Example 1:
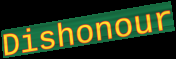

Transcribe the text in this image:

Dishonour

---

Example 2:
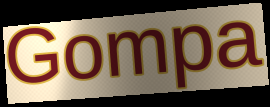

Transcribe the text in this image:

Gompa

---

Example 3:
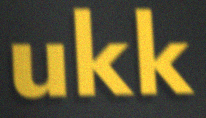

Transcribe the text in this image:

ukk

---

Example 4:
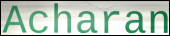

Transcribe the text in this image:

Acharan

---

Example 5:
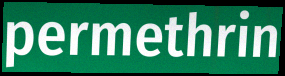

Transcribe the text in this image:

permethrin